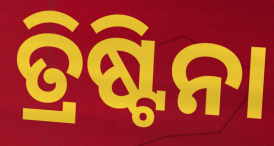
ତ୍ରିଷ୍ଟିନା